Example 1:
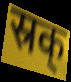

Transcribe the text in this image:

स्रक्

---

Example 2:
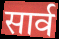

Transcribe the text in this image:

सार्व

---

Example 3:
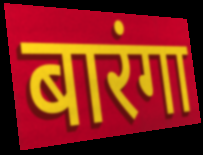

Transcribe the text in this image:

बारंगा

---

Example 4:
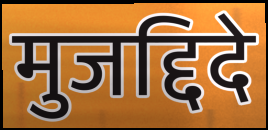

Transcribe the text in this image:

मुजद्दिदे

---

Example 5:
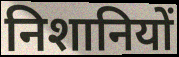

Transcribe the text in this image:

निशानियों